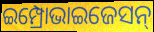
ଇମ୍ପ୍ରୋଭାଇଜେସନ୍